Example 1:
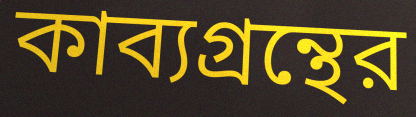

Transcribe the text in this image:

কাব্যগ্রন্থের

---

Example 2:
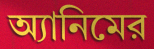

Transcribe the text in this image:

অ্যানিমের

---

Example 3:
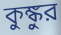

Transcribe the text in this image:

কুঙ্কুর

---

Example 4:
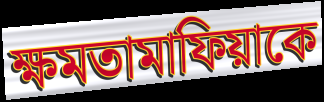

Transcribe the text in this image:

ক্ষমতামাফিয়াকে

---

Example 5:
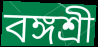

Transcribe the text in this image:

বঙ্গশ্রী